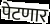
पेटणार